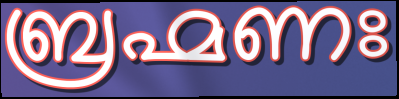
ബ്രഹ്മണഃ